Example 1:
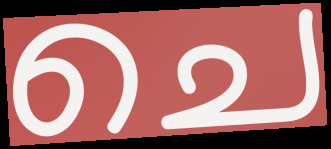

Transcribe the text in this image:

ചെ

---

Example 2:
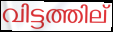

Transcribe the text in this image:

വിട്ടത്തില്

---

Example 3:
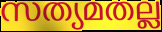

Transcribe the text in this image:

സത്യമതല്ല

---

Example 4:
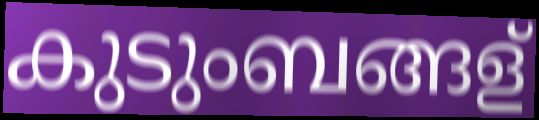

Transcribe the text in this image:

കുടുംബങ്ങള്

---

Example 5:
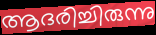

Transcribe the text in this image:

ആദരിച്ചിരുന്നു